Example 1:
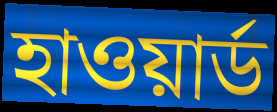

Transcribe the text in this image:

হাওয়ার্ড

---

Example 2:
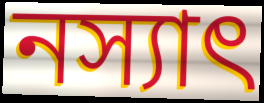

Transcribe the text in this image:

নস্যাৎ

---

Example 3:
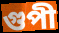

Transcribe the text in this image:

গুপী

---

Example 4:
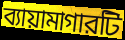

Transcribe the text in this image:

ব্যায়ামাগারটি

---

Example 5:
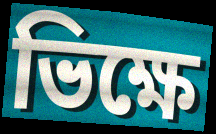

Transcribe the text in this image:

ভিক্ষে